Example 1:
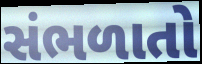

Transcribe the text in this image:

સંભળાતો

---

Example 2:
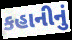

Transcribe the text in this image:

કહાનીનું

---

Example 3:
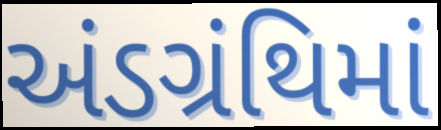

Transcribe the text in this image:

અંડગ્રંથિમાં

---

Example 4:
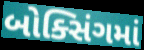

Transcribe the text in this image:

બોક્સિંગમાં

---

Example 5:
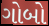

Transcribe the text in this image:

ગોબો